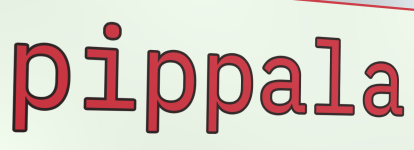
pippala